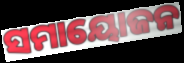
ସମାୟୋଜନ